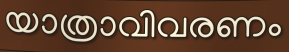
യാത്രാവിവരണം